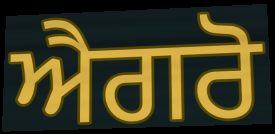
ਐਗਰੋ